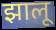
झालू